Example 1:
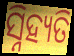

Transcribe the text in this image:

ସ୍ନିହ୍ୟତି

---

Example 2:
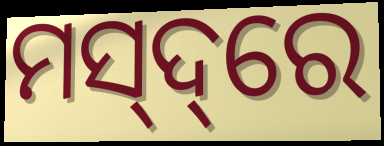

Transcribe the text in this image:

ମସ୍‌ଦ୍‌ରେ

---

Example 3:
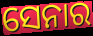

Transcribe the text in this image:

ସେନାର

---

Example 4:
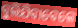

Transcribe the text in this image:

ବୁଲିଯିବାବେଳେ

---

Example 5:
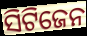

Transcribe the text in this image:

ସିଟିଜେନ